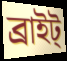
ব্রাইট্